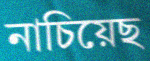
নাচিয়েছ